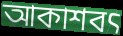
আকাশবৎ